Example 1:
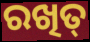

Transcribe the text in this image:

ରଖିତ୍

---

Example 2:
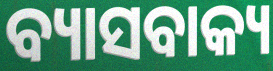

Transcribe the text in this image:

ବ୍ୟାସବାକ୍ୟ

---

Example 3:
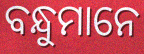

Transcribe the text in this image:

ବନ୍ଧୁମାନେ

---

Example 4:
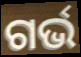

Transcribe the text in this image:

ଗର୍ଭ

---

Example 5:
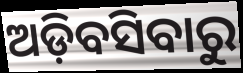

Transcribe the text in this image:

ଅଡ଼ିବସିବାରୁ